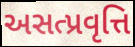
અસત્પ્રવૃત્તિ